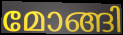
മോങ്ങി